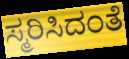
ಸ್ಮರಿಸಿದಂತೆ